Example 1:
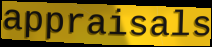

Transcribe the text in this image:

appraisals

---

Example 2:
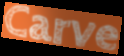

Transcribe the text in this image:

Carve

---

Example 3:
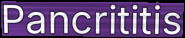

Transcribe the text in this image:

Pancrititis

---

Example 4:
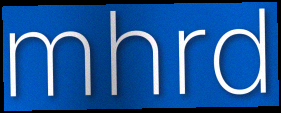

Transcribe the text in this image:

mhrd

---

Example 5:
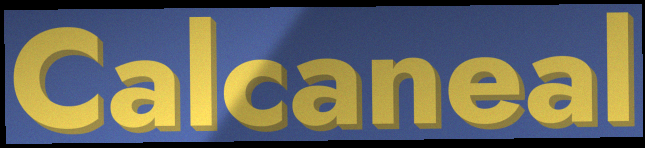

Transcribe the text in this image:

Calcaneal